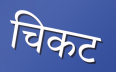
चिकट